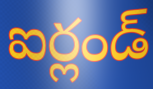
ఐర్లండ్